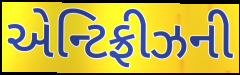
એન્ટિફ્રીઝની